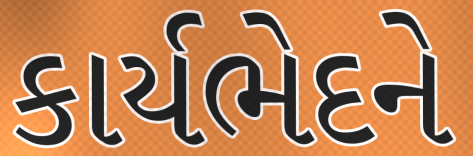
કાર્યભેદને